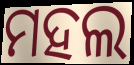
ମହଲ